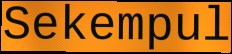
Sekempul